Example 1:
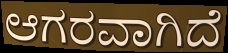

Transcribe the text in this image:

ಆಗರವಾಗಿದೆ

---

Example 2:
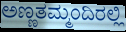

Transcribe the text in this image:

ಅಣ್ಣತಮ್ಮಂದಿರಲ್ಲಿ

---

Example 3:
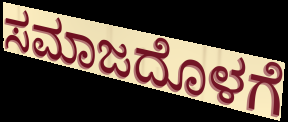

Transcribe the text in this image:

ಸಮಾಜದೊಳಗೆ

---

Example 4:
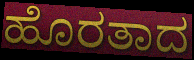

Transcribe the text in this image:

ಹೊರತಾದ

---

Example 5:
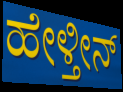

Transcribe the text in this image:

ಹೇಳ್ತೀನ್